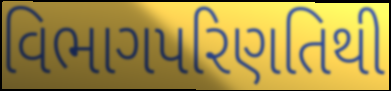
વિભાગપરિણતિથી